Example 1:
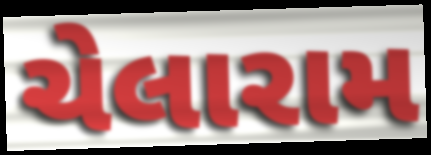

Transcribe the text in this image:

ચેલારામ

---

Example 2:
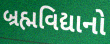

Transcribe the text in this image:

બ્રહ્મવિદ્યાનો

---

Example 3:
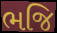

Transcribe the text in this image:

ભજિ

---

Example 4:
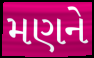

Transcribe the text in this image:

મણને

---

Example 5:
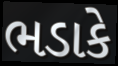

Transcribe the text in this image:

ભડાકે